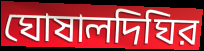
ঘোষালদিঘির